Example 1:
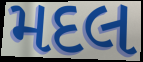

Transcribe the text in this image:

મદલ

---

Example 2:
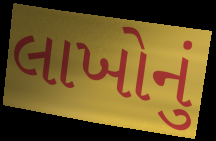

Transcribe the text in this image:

લાખોનું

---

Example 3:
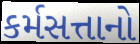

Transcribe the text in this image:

કર્મસત્તાનો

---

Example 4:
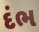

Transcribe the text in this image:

દંભ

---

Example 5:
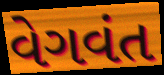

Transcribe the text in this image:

વેગવંત